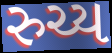
રુચ્ય